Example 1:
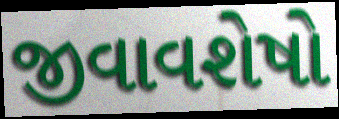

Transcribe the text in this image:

જીવાવશેષો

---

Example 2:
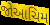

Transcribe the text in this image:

જોઆચિમ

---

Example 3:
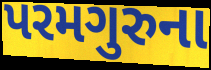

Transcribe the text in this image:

પરમગુરુના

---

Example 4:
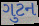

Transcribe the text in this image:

ગુટન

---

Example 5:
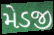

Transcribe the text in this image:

મેડજી